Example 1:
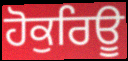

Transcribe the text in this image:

ਹੋਕੁਰਿਊ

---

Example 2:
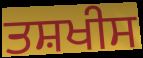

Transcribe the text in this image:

ਤਸ਼ਖੀਸ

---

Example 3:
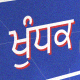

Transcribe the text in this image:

ਖੁੰਧਕ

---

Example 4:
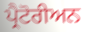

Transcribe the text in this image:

ਪ੍ਰੈਟੋਰੀਅਨ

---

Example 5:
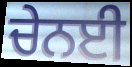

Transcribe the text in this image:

ਚੇਨਈ